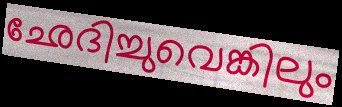
ഛേദിച്ചുവെങ്കിലും